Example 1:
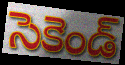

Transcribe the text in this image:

సెకెండ్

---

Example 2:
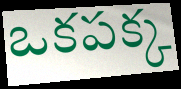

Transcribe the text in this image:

ఒకపక్క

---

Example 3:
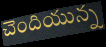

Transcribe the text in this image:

చెందియున్న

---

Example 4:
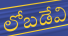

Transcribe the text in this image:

లోబడేవి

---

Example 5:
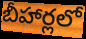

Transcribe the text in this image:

బీహార్లలో